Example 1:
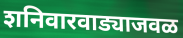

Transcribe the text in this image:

शनिवारवाड्याजवळ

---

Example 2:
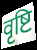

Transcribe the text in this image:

वृष्टि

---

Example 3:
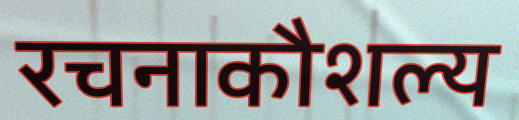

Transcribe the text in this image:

रचनाकौशल्य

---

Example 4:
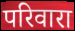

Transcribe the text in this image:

परिवारा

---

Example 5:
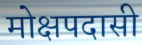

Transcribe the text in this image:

मोक्षपदासी